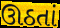
ઊઠતાં